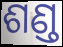
ଶଣ୍ଡ